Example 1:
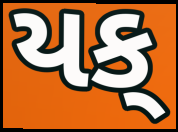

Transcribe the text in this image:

યક્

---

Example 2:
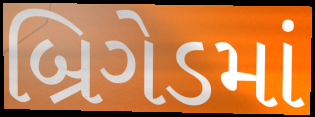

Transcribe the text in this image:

બ્રિગેડમાં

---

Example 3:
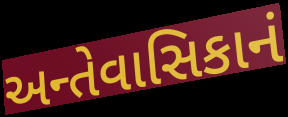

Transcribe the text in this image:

અન્તેવાસિકાનં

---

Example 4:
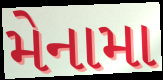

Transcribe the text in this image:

મેનામા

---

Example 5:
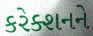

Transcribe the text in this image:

કરેક્શનને